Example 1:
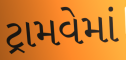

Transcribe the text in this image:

ટ્રામવેમાં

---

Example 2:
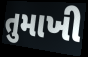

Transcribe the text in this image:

તુમાખી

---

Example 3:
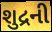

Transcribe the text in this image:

શુદ્રની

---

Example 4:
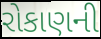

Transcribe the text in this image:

રોકાણની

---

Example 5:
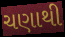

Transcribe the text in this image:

ચણાથી